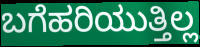
ಬಗೆಹರಿಯುತ್ತಿಲ್ಲ